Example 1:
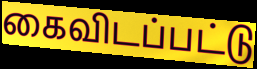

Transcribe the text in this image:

கைவிடப்பட்டு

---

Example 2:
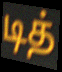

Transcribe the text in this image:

டித்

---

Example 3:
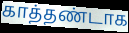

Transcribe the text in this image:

காத்தண்டாக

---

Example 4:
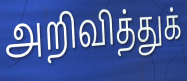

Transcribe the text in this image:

அறிவித்துக்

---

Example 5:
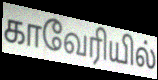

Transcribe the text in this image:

காவேரியில்